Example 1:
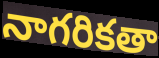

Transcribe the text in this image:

నాగరికతా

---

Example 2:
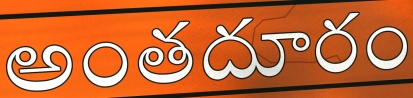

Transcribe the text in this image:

అంతదూరం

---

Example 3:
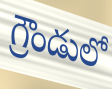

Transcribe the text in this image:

గ్రౌండులో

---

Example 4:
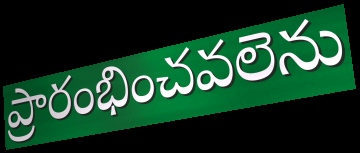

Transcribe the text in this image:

ప్రారంభించవలెను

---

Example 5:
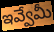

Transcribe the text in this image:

ఇవ్వేమీ